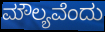
ಮೌಲ್ಯವೆಂದು